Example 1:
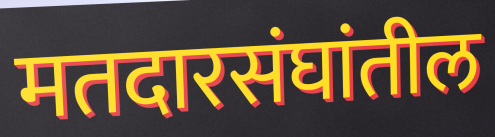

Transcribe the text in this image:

मतदारसंघांतील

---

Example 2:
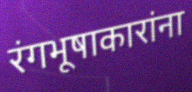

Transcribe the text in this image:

रंगभूषाकारांना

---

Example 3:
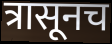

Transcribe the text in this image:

त्रासूनच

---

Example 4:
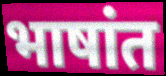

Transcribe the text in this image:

भाषांत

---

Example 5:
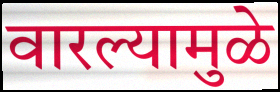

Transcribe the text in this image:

वारल्यामुळे